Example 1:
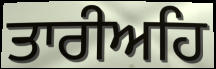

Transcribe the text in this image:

ਤਾਰੀਅਹਿ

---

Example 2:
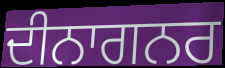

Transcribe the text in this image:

ਦੀਨਾਗਨਰ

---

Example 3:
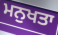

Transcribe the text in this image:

ਮਨੁਖਤਾ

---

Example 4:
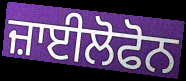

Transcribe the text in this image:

ਜ਼ਾਈਲੋਫੋਨ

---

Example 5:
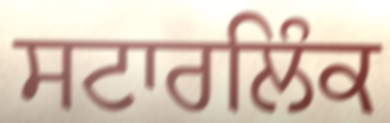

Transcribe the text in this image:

ਸਟਾਰਲਿੰਕ